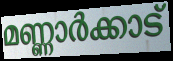
മണ്ണാർക്കാട്